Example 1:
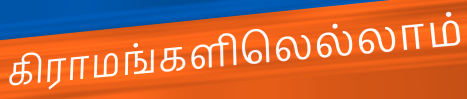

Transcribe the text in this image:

கிராமங்களிலெல்லாம்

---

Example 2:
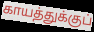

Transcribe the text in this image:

காயத்துக்குப்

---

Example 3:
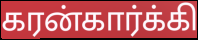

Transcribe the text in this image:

கரன்கார்க்கி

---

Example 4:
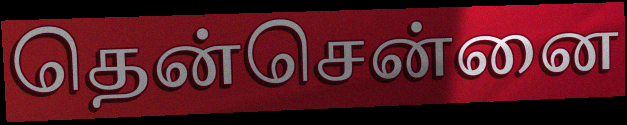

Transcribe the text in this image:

தென்சென்னை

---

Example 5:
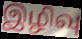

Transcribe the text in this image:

இழிவு